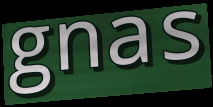
gnas